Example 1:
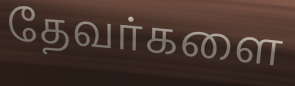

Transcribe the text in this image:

தேவர்களை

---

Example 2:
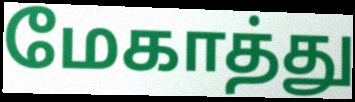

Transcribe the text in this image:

மேகாத்து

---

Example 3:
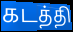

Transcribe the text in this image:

கடத்தி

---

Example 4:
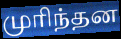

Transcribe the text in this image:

முரிந்தன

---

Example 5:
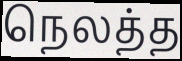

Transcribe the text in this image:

நெலத்த